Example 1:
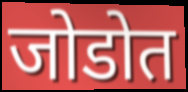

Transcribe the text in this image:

जोडोत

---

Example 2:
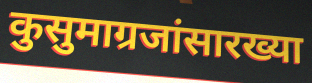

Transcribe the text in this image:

कुसुमाग्रजांसारख्या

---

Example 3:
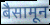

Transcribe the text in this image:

बैसामून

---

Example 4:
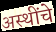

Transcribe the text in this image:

अस्थींचे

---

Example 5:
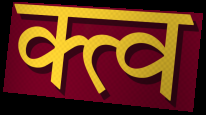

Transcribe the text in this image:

क्त्व